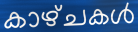
കാഴ്‌ചകൾ